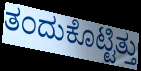
ತಂದುಕೊಟ್ಟಿತ್ತು